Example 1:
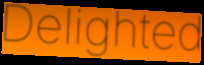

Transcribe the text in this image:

Delighted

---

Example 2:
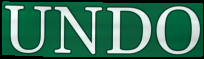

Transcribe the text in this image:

UNDO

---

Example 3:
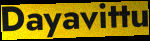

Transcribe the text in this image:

Dayavittu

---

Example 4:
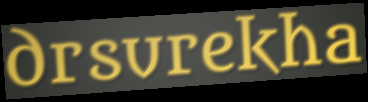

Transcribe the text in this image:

drsurekha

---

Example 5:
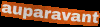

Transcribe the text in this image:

auparavant